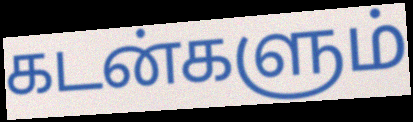
கடன்களும்